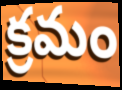
క్రమం